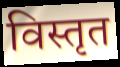
विस्तृत